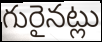
గురైనట్లు